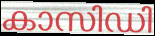
കാസിഡി